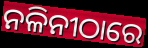
ନଳିନୀଠାରେ